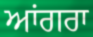
ਆਂਗਰਾ